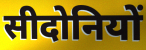
सीदोनियों